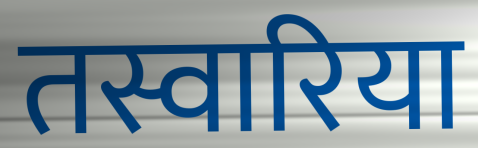
तस्वारिया